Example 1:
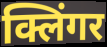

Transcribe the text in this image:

क्लिंगर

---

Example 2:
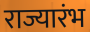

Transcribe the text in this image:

राज्यारंभ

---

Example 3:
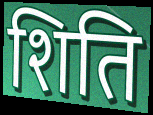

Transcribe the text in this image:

शिति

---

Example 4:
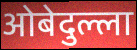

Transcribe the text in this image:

ओबेदुल्ला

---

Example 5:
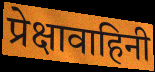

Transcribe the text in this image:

प्रेक्षावाहिनी